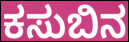
ಕಸುಬಿನ